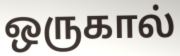
ஒருகால்